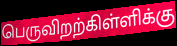
பெருவிறற்கிள்ளிக்கு